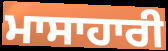
ਮਾਸਾਹਾਰੀ